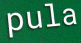
pula